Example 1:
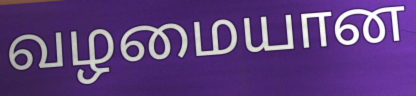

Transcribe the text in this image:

வழமையான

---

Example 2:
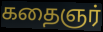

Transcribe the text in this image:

கதைஞர்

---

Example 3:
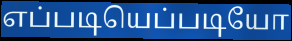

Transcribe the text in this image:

எப்படியெப்படியோ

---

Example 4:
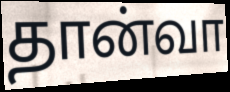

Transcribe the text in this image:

தான்வா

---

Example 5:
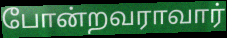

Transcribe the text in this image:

போன்றவராவார்